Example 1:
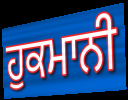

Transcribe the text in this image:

ਹੁਕਮਾਨੀ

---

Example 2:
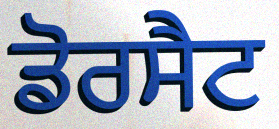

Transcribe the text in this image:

ਡੋਰਸੈਟ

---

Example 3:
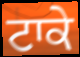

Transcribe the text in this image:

ਟਾਕੇ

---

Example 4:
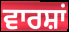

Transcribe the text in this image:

ਵਾਰਸ਼ਾਂ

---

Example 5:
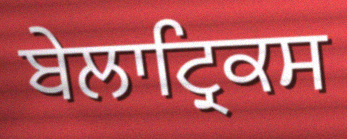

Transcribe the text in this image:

ਬੇਲਾਟ੍ਰਿਕਸ